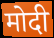
मोदी